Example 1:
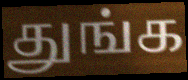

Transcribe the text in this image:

துங்க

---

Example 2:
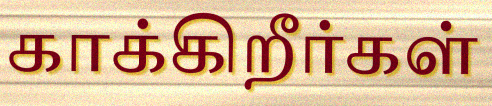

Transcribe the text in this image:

காக்கிறீர்கள்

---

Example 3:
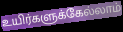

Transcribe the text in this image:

உயிர்களுக்கேல்லாம்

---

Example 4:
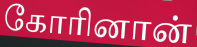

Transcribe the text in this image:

கோரினான்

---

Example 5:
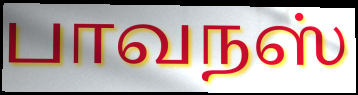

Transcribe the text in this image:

பாவநஸ்